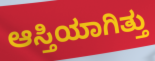
ಆಸ್ತಿಯಾಗಿತ್ತು